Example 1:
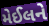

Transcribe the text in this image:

મેઈલને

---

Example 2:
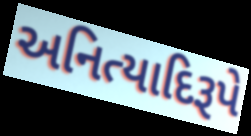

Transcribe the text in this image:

અનિત્યાદિરૂપે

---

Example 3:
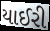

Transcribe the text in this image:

યાઈરી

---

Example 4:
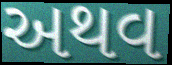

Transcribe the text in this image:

અથવ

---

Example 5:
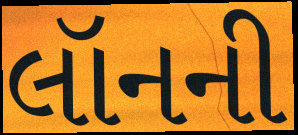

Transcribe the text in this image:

લૉનની